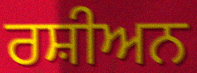
ਰਸ਼ੀਅਨ